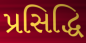
પ્રસિદ્ધિ